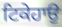
ਟਿਕੇਹਾਉ